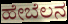
ಹೇಬೆಲನ